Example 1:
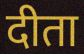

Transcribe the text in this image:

दीता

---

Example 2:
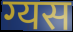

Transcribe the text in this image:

ग्यस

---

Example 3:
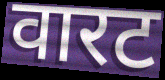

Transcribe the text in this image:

वारट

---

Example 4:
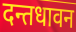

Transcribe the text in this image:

दन्तधावन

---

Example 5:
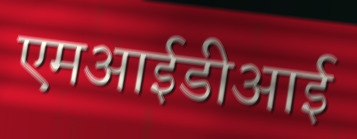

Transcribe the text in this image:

एमआईडीआई